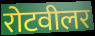
रोटवीलर